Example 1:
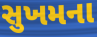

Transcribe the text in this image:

સુખમના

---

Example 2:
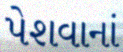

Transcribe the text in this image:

પેશવાનાં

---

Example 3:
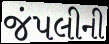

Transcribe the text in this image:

જંપલીની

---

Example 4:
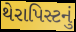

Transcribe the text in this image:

થેરાપિસ્ટનું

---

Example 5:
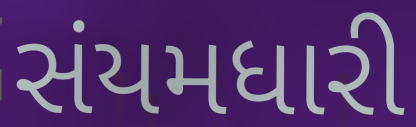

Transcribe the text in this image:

સંયમધારી